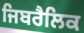
ਜਿਬਰੈਲਿਕ